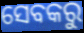
ସେବକରୁ